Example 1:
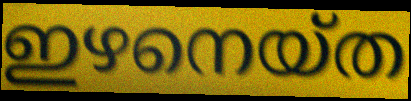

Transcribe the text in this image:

ഇഴനെയ്ത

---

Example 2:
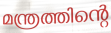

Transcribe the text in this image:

മന്ത്രത്തിന്റെ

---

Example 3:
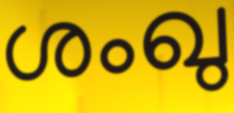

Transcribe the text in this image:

ശംഖു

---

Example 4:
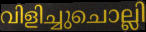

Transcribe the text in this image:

വിളിച്ചുചൊല്ലി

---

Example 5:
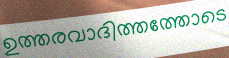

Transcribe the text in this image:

ഉത്തരവാദിത്തത്തോടെ